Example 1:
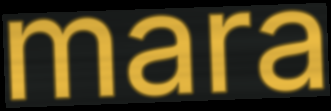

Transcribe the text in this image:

mara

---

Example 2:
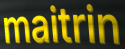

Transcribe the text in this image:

maitrin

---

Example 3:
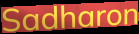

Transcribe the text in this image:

Sadharon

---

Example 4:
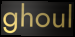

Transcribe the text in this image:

ghoul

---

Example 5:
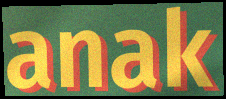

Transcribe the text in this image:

anak